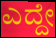
ಎದ್ದೇ